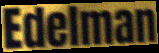
Edelman